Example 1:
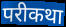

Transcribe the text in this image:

परीकथा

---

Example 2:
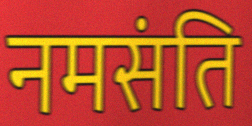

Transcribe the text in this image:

नमसंति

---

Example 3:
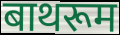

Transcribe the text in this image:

बाथरूम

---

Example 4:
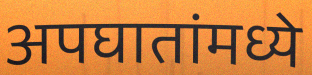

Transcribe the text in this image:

अपघातांमध्ये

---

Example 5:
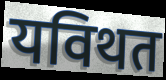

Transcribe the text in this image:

यविथत